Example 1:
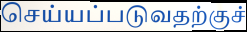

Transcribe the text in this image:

செய்யப்படுவதற்குச்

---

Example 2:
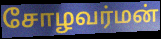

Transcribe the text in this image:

சோழவர்மன்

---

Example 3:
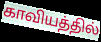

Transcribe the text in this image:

காவியத்தில்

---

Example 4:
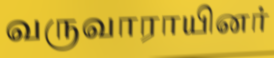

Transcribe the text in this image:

வருவாராயினர்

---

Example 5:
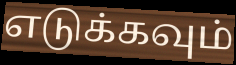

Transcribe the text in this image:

எடுக்கவும்